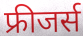
फ्रीजर्स